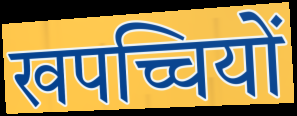
खपच्चियों